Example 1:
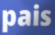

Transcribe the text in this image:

pais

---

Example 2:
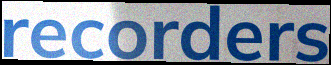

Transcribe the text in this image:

recorders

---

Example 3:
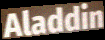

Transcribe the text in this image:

Aladdin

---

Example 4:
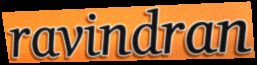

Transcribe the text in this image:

ravindran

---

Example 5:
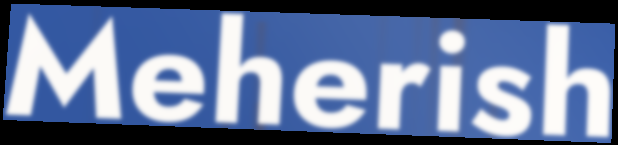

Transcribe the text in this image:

Meherish